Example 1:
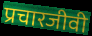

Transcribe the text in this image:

प्रचारजीवी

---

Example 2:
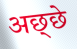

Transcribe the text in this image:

अछ्छे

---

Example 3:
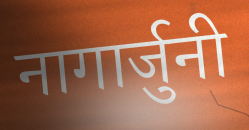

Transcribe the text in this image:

नागार्जुनी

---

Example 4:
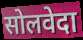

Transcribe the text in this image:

सोलवेदा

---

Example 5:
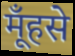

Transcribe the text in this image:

मूँहसे